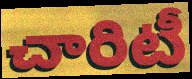
చారిటీ